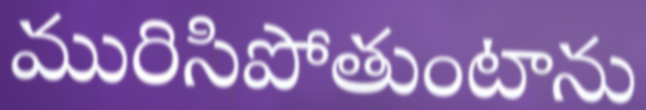
మురిసిపోతుంటాను